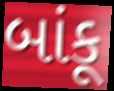
બાંકૂ